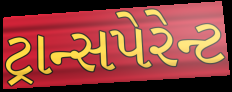
ટ્રાન્સપેરેન્ટ